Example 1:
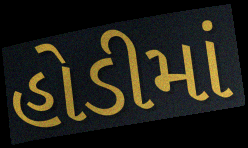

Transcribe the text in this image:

હોડીમાં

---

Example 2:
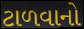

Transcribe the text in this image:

ટાળવાનો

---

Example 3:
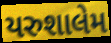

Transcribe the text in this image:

યરુશાલેમ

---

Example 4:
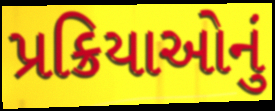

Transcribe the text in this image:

પ્રક્રિયાઓનું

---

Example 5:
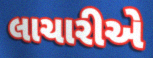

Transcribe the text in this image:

લાચારીએ